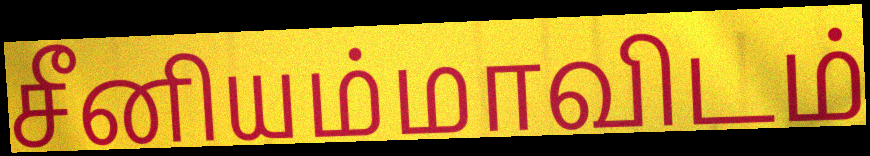
சீனியம்மாவிடம்